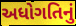
અધોગતિનું